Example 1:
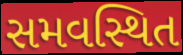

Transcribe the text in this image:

સમવસ્થિત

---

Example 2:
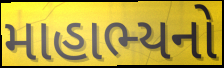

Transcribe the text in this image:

માહાભ્યનો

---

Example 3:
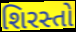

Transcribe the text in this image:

શિરસ્તો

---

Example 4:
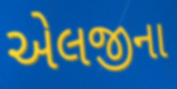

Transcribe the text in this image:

એલજીના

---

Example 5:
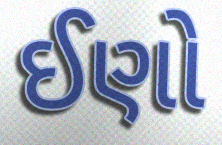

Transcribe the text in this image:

ઈણો